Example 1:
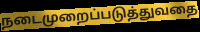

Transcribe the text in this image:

நடைமுறைப்படுத்துவதை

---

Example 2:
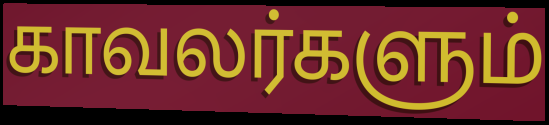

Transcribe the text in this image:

காவலர்களும்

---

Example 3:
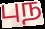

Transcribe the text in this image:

புந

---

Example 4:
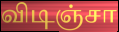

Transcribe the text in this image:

விடிஞ்சா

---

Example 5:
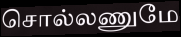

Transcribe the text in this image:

சொல்லணுமே